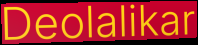
Deolalikar